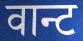
वान्ट